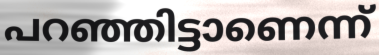
പറഞ്ഞിട്ടാണെന്ന്